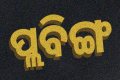
ପ୍ଲବିଙ୍ଗ